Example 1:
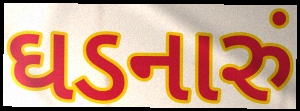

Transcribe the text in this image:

ઘડનારું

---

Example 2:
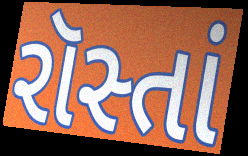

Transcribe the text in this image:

રૉસ્તાં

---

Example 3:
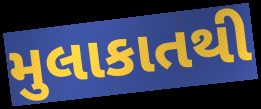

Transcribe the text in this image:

મુલાકાતથી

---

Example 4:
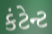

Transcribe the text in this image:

કંટેન્ટ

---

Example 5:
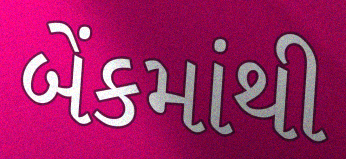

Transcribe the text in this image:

બેંકમાંથી